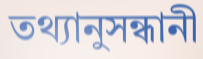
তথ্যানুসন্ধানী